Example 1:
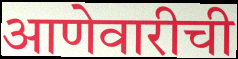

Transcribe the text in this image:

आणेवारीची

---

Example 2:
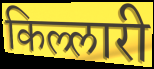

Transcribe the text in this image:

किल्लारी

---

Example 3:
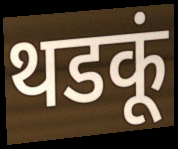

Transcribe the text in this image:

थडकूं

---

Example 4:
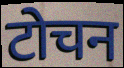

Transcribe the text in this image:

टोचन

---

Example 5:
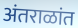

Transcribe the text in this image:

अंतराळांत